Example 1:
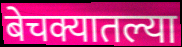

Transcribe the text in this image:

बेचक्यातल्या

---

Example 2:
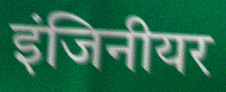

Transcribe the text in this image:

इंजिनीयर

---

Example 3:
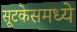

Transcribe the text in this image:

सूटकेसमध्ये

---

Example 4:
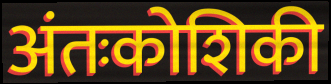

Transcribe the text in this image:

अंतःकोशिकी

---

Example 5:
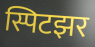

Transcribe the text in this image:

स्पिटझर